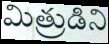
మిత్రుడిని